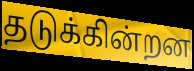
தடுக்கின்றன